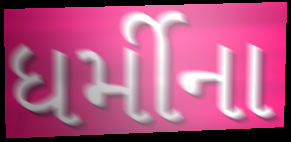
ધર્મીના